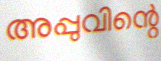
അപ്പുവിന്റെ